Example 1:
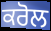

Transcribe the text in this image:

ਕਰੋਲ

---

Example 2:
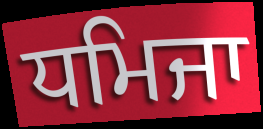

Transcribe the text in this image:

ਧਮਿਜਾ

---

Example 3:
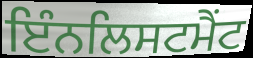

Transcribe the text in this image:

ਇੰਨਲਿਸਟਮੈਂਟ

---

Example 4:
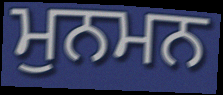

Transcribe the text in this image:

ਮੁਨਮਨ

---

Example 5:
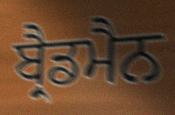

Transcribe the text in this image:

ਬ੍ਰੈਡਮੈਨ